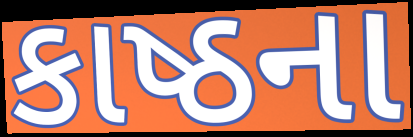
કાષ્ઠના